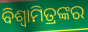
ବିଶ୍ବାମିତ୍ରଙ୍କର